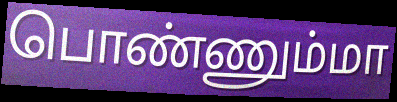
பொண்ணும்மா